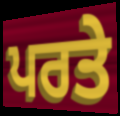
ਪਰਤੇ